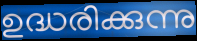
ഉദ്ധരിക്കുന്നു